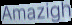
Amazigh